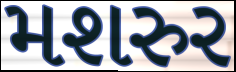
મશરુર